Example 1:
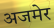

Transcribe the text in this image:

अजमेर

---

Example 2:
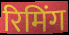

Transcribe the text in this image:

रिमिंग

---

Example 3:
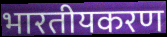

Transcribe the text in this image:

भारतीयकरण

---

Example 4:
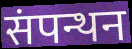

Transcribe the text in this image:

संपन्थन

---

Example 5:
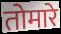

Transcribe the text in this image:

तोमारे